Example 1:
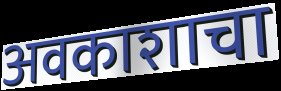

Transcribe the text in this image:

अवकाशाचा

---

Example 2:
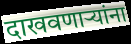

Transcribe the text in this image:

दाखवणाऱ्यांना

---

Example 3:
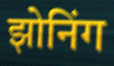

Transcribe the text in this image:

झोनिंग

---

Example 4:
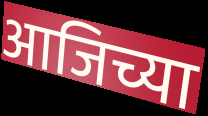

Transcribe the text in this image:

आजिच्या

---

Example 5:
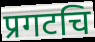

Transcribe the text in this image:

प्रगटचि